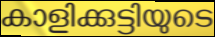
കാളിക്കുട്ടിയുടെ